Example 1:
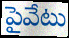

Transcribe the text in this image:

పైవేటు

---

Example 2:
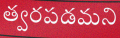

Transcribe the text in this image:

త్వరపడమని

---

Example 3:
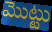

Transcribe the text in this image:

మొట్టు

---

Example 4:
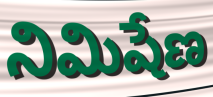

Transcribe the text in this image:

నిమిషేణ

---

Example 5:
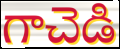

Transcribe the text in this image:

గాచెడి